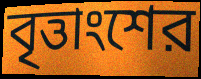
বৃত্তাংশের